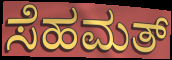
ಸೆಹಮತ್